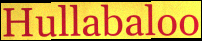
Hullabaloo